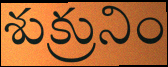
శుక్రునిం